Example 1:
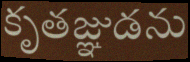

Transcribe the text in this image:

కృతజ్ఞుడను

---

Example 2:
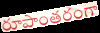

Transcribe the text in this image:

రూపాంతరంగా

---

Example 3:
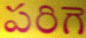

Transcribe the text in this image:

పరిగె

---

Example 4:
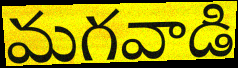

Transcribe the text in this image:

మగవాడి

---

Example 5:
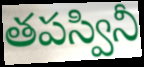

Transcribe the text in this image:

తపస్వినీ